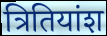
त्रितियांश